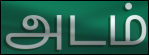
அடம்